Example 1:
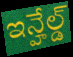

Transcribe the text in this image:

ఇన్హేల్డ్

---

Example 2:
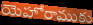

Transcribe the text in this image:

యెహోరాముకు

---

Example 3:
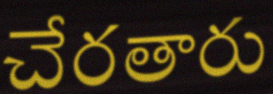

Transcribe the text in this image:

చేరతారు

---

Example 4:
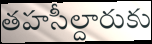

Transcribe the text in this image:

తహసీల్దారుకు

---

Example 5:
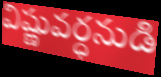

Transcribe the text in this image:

విష్ణువర్ధనుడి